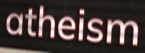
atheism